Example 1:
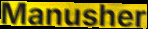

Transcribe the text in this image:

Manusher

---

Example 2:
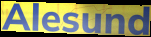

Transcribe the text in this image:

Alesund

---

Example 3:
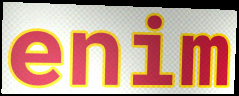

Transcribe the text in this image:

enim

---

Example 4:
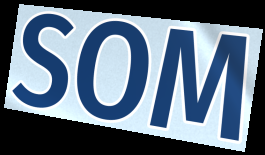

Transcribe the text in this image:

SOM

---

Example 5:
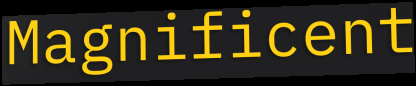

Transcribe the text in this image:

Magnificent